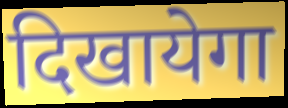
दिखायेगा